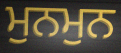
ਮੁਨਮੁਨ